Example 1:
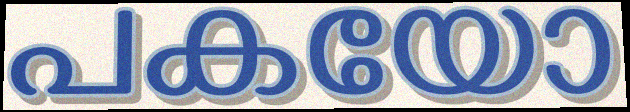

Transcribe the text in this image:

പകയോ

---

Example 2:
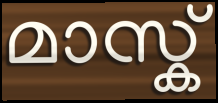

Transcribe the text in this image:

മാസ്ക്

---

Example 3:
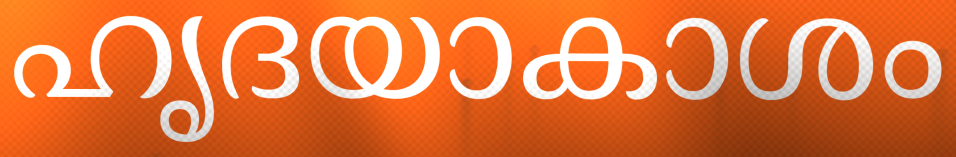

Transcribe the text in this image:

ഹൃദയാകാശം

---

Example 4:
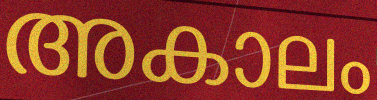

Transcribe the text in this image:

അകാലം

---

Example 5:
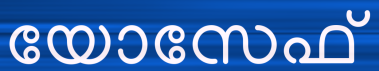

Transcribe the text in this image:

യോസേഫ്